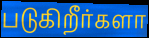
படுகிறீர்களா